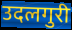
उदलगुरी